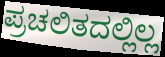
ಪ್ರಚಲಿತದಲ್ಲಿಲ್ಲ